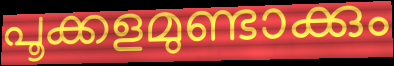
പൂക്കളമുണ്ടാക്കും